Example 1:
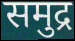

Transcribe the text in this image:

समुद्र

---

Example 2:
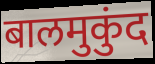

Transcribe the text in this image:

बालमुकुंद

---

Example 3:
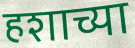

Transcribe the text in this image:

हशाच्या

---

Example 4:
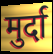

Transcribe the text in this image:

मुर्दा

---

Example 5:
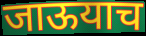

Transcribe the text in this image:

जाऊयाच